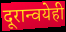
दूरान्वयेही